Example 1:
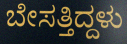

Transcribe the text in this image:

ಬೇಸತ್ತಿದ್ದಳು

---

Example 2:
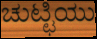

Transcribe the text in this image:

ಚುಟ್ಟಿಯು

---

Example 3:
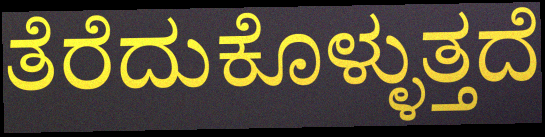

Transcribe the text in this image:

ತೆರೆದುಕೊಳ್ಳುತ್ತದೆ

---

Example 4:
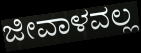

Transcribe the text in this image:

ಜೀವಾಳವಲ್ಲ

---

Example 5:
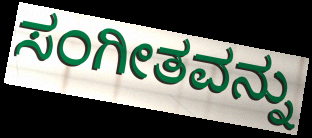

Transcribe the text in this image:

ಸಂಗೀತವನ್ನು